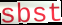
sbst